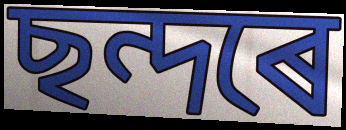
ছন্দৰে